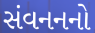
સંવનનનો